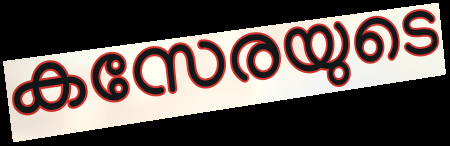
കസേരയുടെ